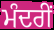
ਮੰਦਰੀਂ